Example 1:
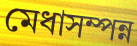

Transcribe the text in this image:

মেধাসম্পন্ন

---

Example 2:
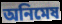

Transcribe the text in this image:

অনিমেষ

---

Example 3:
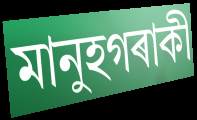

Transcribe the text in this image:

মানুহগৰাকী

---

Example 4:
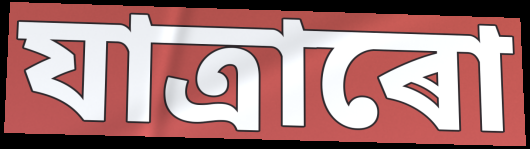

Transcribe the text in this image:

যাত্ৰাৰো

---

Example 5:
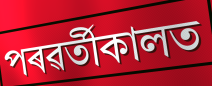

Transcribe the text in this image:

পৰৱৰ্তীকালত